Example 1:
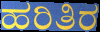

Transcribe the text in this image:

ಹರಿತಿರ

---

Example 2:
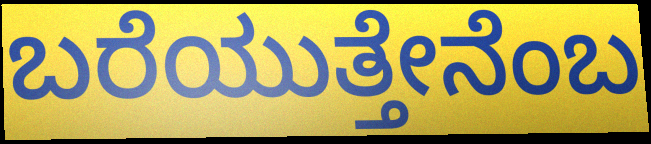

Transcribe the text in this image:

ಬರೆಯುತ್ತೇನೆಂಬ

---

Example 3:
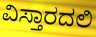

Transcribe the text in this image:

ವಿಸ್ತಾರದಲಿ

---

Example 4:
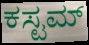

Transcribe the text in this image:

ಕಸ್ಟಮ್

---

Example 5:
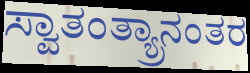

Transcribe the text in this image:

ಸ್ವಾತಂತ್ಯ್ರಾನಂತರ